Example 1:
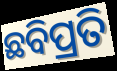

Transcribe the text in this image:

ଛବିପ୍ରତି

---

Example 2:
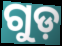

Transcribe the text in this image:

ଗୁଡ଼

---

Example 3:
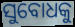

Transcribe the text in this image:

ସୁବୋଧକୁ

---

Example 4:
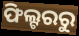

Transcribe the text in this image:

ଫିଲ୍ଟରରୁ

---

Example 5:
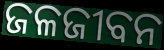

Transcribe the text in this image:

ଜଳଜୀବନ